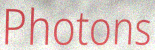
Photons